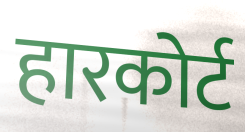
हारकोर्ट